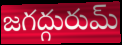
జగద్గురుమ్